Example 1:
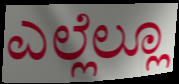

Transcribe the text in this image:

ಎಲ್ಲೆಲ್ಲೂ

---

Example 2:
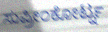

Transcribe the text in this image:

ಸುಪ್ರೀಂಕೋರ್ಟ್ನ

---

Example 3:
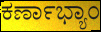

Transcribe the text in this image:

ಕರ್ಣಾಭ್ಯಾಂ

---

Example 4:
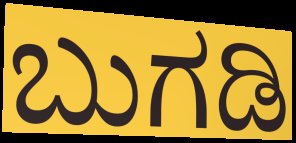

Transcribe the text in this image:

ಬುಗಡಿ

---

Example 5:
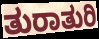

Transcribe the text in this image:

ತುರಾತುರಿ